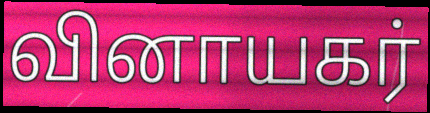
வினாயகர்